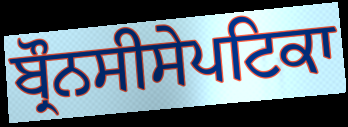
ਬ੍ਰੌਨਸੀਸੇਪਟਿਕਾ